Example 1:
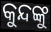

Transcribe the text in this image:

କୁନ୍ଦଙ୍କୁ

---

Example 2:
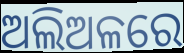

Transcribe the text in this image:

ଅଲିଅଳରେ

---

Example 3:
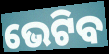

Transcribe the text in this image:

ଭେଟିବ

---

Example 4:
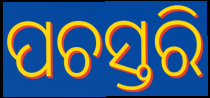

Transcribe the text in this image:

ପଚସ୍ତରି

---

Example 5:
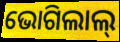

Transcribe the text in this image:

ଭୋଗିଲାଲ୍